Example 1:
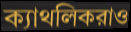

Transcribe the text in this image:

ক্যাথলিকরাও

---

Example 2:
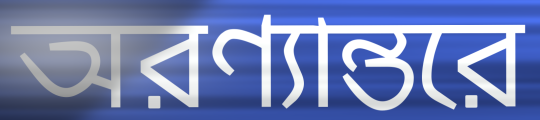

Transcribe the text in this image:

অরণ্যান্তরে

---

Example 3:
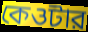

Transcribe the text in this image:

কেওটার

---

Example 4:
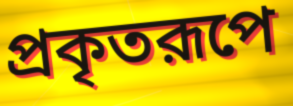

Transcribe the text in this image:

প্রকৃতরূপে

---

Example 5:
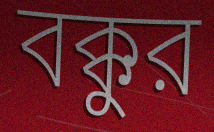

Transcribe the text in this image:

বক্কুর